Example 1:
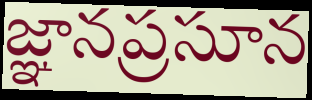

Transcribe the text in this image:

జ్ఞానప్రసూన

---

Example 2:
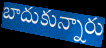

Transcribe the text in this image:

బాదుకున్నారు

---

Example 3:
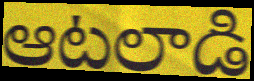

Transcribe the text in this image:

ఆటలాడి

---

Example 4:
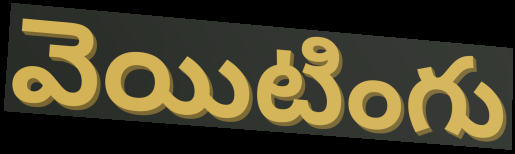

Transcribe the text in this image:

వెయిటింగు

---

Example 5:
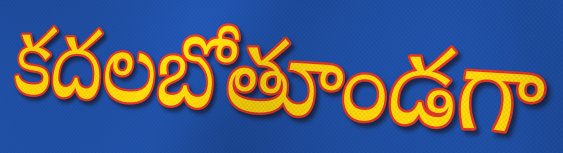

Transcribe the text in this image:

కదలబోతూండగా